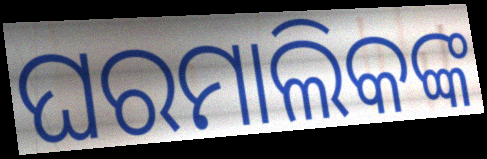
ଘରମାଲିକଙ୍କ